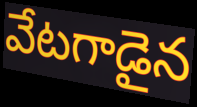
వేటగాడైన